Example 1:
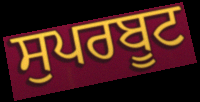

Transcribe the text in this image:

ਸੁਪਰਬੂਟ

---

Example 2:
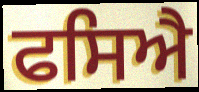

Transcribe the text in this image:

ਫਸਿਐ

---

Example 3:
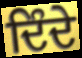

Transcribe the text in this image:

ਦਿੰਦੇ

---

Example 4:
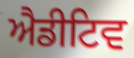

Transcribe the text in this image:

ਐਡੀਟਿਵ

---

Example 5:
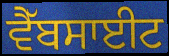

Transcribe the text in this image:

ਵੈੱਬਸਾਈਟ